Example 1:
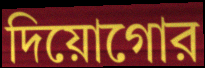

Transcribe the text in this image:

দিয়োগোর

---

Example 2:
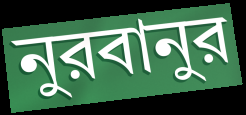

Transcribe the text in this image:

নুরবানুর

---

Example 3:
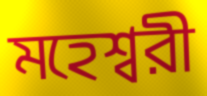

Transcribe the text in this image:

মহেশ্বরী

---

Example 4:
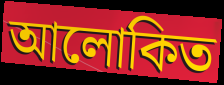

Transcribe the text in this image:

আলোকিত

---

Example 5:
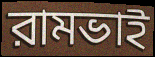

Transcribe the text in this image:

রামভাই